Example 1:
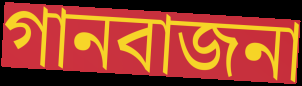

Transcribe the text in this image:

গানবাজনা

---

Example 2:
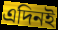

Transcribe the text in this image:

এদিনই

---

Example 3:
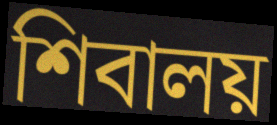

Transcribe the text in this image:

শিবালয়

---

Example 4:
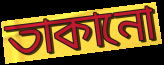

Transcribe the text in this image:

তাকানো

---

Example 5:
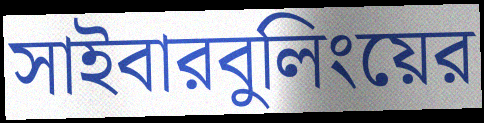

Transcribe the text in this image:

সাইবারবুলিংয়ের